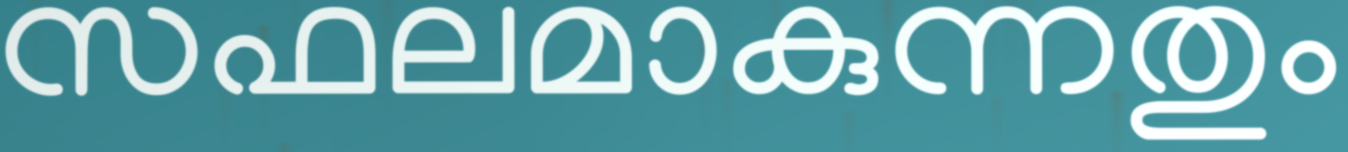
സഫലമാകുന്നതും